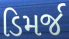
ડિમર્જ